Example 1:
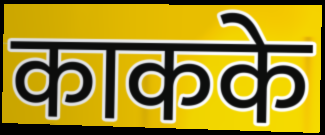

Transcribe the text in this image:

काकके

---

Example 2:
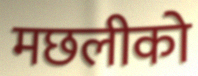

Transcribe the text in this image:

मछलीको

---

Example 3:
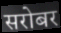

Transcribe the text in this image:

सरोबर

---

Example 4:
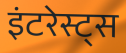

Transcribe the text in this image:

इंटरेस्ट्स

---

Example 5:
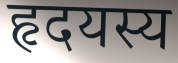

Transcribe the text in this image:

हृदयस्य